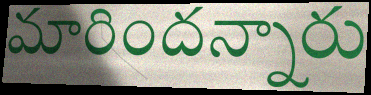
మారిందన్నారు